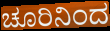
ಚೂರಿನಿಂದ